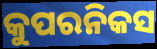
କୁପରନିକସ